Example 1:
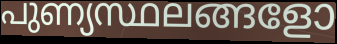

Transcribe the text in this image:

പുണ്യസ്ഥലങ്ങളോ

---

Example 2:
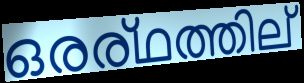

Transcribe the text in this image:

ഒരര്ഥത്തില്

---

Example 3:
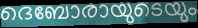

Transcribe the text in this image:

ദെബോരായുടെയും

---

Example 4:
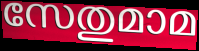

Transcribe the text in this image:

സേതുമാമ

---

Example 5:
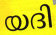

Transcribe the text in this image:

യദി